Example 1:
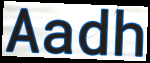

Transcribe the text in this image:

Aadh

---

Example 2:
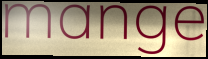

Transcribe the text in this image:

mange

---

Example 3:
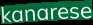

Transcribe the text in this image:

kanarese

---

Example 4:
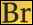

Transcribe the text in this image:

Br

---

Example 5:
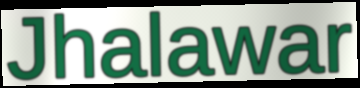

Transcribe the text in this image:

Jhalawar